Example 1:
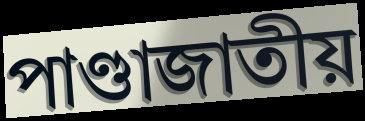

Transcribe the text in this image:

পাণ্ডাজাতীয়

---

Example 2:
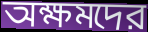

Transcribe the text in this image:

অক্ষমদের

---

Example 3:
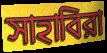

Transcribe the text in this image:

সাহাবিরা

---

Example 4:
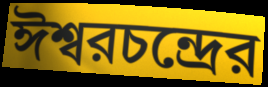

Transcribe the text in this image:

ঈশ্বরচন্দ্রের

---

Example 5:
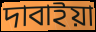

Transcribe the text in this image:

দাবাইয়া